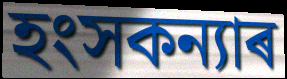
হংসকন্যাৰ